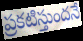
ప్రకటిస్తుందనే